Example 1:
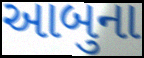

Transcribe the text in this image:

આબુના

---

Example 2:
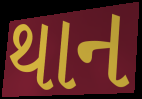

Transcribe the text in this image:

થાન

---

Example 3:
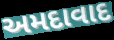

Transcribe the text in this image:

અમદાવાદ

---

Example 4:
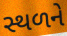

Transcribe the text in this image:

સ્થળને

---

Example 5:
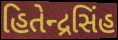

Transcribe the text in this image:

હિતેન્દ્રસિંહ